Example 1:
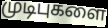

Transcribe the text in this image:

முடிபுகளை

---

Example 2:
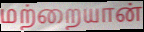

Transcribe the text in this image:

மற்றையான்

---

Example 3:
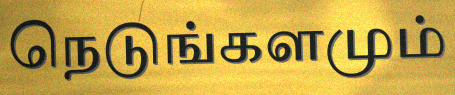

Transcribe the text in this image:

நெடுங்களமும்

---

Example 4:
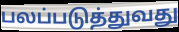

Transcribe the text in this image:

பலப்படுத்துவது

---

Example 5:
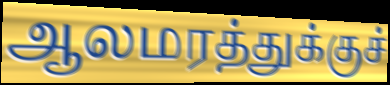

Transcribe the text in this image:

ஆலமரத்துக்குச்